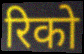
रिको